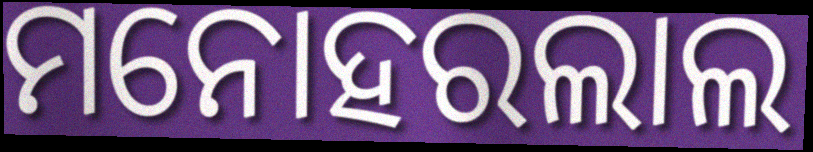
ମନୋହରଲାଲ